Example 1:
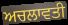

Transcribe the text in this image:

ਅਚਲਾਵਤੀ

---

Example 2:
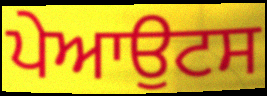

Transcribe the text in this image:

ਪੇਆਉਟਸ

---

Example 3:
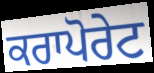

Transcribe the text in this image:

ਕਰਾਪੋਰੇਟ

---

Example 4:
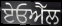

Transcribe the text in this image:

ਏਓਐੱਲ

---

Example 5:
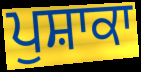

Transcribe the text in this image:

ਪੁਸ਼ਾਕਾ